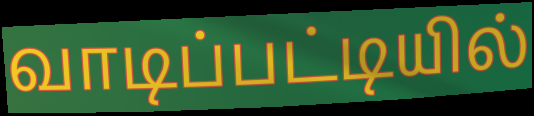
வாடிப்பட்டியில்